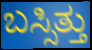
ಬಸ್ಸಿತ್ತು